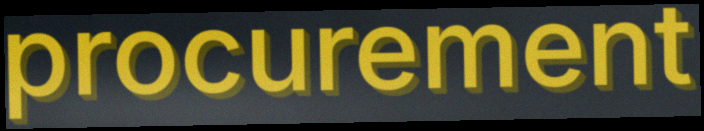
procurement